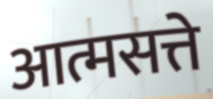
आत्मसत्ते